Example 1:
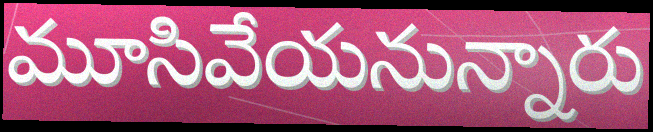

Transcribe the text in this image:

మూసివేయనున్నారు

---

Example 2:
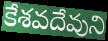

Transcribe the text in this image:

కేశవదేవుని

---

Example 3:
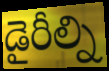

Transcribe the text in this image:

డైరీల్ని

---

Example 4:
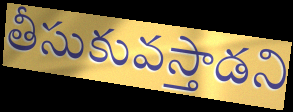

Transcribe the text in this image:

తీసుకువస్తాడని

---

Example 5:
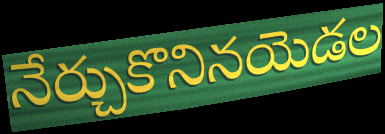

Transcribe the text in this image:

నేర్చుకొనినయెడల